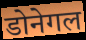
डोनेगल